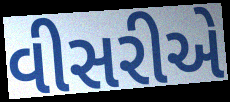
વીસરીએ